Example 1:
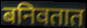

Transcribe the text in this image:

बनिवतात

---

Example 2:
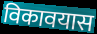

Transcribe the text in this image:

विकावयास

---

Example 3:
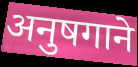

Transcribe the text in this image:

अनुषगाने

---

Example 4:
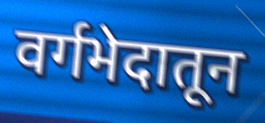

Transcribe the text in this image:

वर्गभेदातून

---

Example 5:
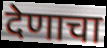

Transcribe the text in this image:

देणाचा